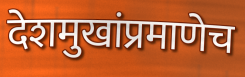
देशमुखांप्रमाणेच